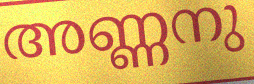
അണ്ണനു